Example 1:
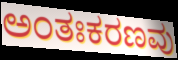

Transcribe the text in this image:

ಅಂತಃಕರಣವು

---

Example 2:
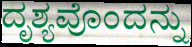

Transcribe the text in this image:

ದೃಶ್ಯವೊಂದನ್ನು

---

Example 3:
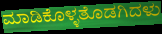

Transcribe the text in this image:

ಮಾಡಿಕೊಳ್ಳತೊಡಗಿದಳು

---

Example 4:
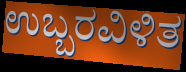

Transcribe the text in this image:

ಉಬ್ಬರವಿಳಿತ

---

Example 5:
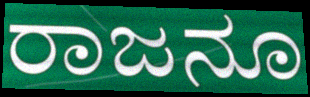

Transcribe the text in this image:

ರಾಜನೂ